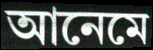
আনেমে